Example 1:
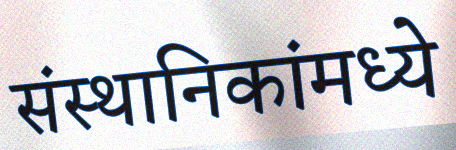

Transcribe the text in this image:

संस्थानिकांमध्ये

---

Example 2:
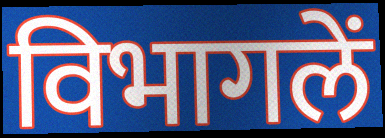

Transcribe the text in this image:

विभागलें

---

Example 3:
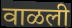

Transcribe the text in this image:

वाळली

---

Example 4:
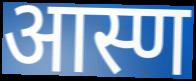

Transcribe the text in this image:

आस्ण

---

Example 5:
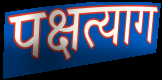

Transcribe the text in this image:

पक्षत्याग